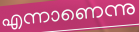
എന്നാണെന്നു